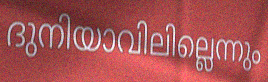
ദുനിയാവിലില്ലെന്നും